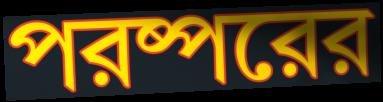
পরষ্পরের